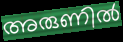
അരുണിൽ